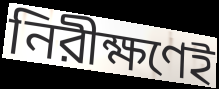
নিরীক্ষণেই